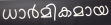
ധാർമികമായ